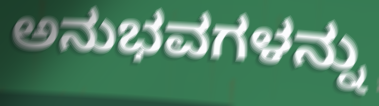
ಅನುಭವಗಳನ್ನು